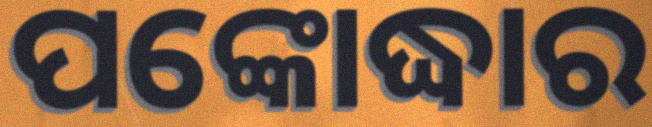
ପଙ୍କୋଦ୍ଧାର